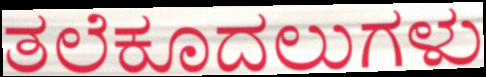
ತಲೆಕೂದಲುಗಳು